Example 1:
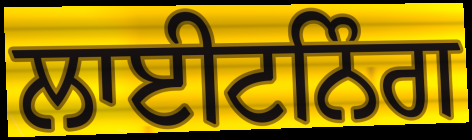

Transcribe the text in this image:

ਲਾਈਟਨਿੰਗ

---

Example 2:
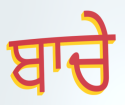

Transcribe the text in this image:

ਬਾਚੇ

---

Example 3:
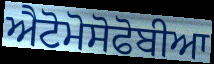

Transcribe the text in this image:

ਐਟੋਮੋਸੋਫੋਬੀਆ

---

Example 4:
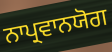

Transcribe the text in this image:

ਨਾਪ੍ਰਵਾਨਯੋਗ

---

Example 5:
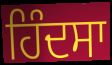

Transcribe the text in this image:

ਹਿੰਦਸਾ